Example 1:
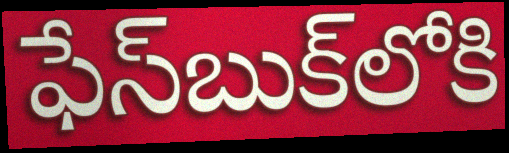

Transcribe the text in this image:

ఫేస్‌బుక్‌లోకి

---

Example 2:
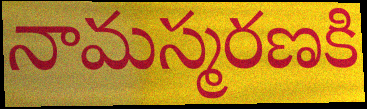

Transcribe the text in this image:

నామస్మరణకి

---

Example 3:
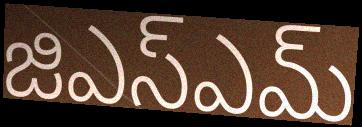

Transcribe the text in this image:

జిఎస్ఎమ్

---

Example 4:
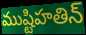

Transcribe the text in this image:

ముష్టిహతిన్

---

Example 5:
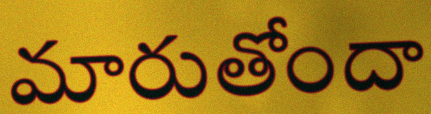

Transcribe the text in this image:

మారుతోందా